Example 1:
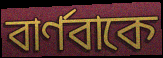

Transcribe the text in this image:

বার্ণবাকে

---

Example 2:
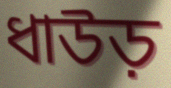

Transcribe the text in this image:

ধাউড়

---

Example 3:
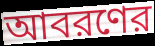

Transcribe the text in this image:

আবরণের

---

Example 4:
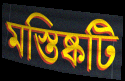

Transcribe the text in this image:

মস্তিষ্কটি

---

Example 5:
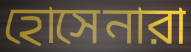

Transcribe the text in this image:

হোসেনারা